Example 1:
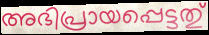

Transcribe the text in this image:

അഭിപ്രായപ്പെട്ടതു്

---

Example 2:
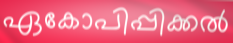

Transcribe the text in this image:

ഏകോപിപ്പിക്കൽ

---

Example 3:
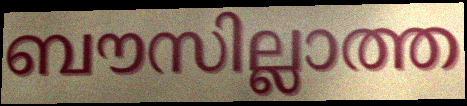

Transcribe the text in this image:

ബൗസില്ലാത്ത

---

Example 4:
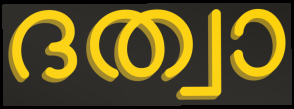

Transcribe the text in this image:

ദത്വാ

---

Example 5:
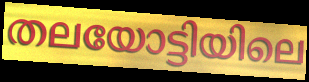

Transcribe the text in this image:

തലയോട്ടിയിലെ